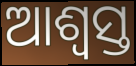
ଆଶ୍ୱସ୍ତ